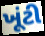
ખૂંટી